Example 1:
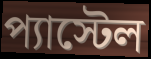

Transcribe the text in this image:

প্যাস্টেল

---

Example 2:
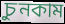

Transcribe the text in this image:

চুনকাম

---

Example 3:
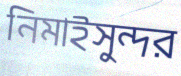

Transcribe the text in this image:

নিমাইসুন্দর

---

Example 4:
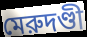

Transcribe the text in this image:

মেরুদণ্ডী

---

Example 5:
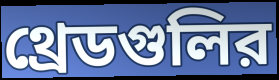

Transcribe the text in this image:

থ্রেডগুলির